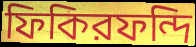
ফিকিরফন্দি